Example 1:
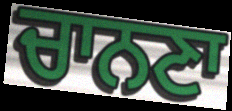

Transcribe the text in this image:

ਚਾਨਣਾ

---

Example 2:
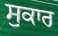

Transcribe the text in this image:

ਸੁਕਾਰ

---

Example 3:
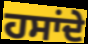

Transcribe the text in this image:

ਹਸਾਂਦੇ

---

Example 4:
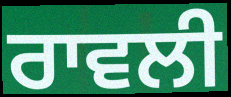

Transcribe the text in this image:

ਰਾਵਲੀ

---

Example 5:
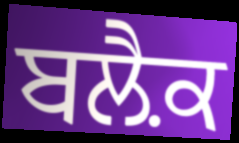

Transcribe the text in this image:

ਬਲ਼ੈਕ